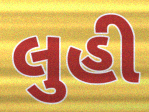
લુહી